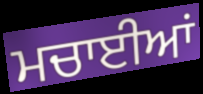
ਮਚਾਈਆਂ